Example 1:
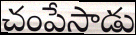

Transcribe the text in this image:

చంపేసాడు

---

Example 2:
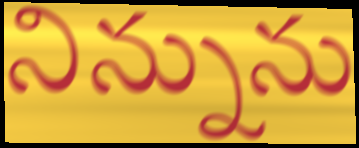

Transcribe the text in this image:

నిన్నును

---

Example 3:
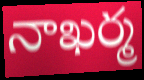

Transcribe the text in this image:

నాఖర్మ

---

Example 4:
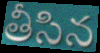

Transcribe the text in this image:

తీసిన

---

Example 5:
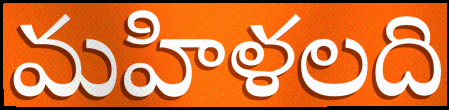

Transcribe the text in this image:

మహిళలది